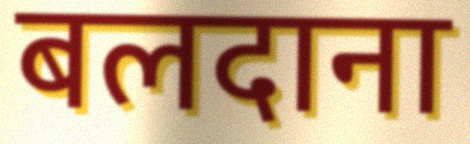
बलदाना